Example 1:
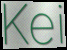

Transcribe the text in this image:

Kei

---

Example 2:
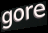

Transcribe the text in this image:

gore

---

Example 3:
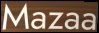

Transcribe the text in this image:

Mazaa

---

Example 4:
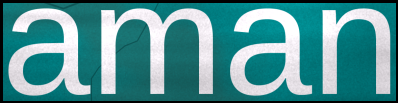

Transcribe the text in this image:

aman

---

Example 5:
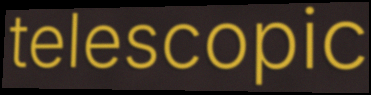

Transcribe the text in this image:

telescopic